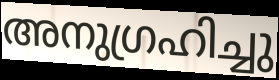
അനുഗ്രഹിച്ചു